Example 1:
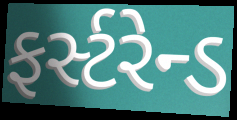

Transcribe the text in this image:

ફર્સ્ટરેન્ડ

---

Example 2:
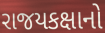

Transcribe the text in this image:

રાજયકક્ષાનો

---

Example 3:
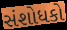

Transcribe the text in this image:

સંશોધકો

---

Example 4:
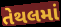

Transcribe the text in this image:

તેથલમાં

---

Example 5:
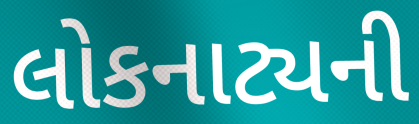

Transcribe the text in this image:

લોકનાટ્યની